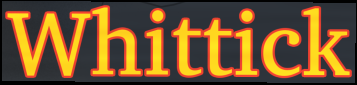
Whittick